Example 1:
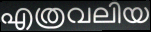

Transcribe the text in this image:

എത്രവലിയ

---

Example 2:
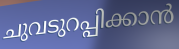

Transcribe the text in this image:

ചുവടുറപ്പിക്കാൻ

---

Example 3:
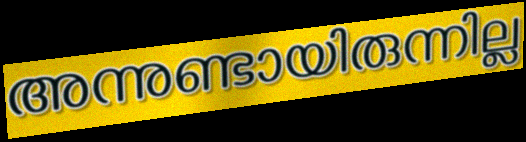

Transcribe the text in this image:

അന്നുണ്ടായിരുന്നില്ല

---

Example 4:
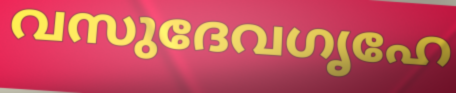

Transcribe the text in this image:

വസുദേവഗൃഹേ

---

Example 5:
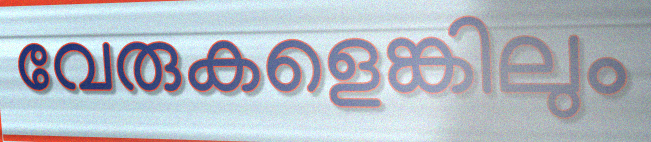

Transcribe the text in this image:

വേരുകളെങ്കിലും